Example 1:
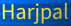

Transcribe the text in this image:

Harjpal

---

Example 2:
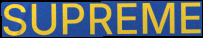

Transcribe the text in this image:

SUPREME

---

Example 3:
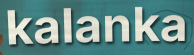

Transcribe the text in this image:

kalanka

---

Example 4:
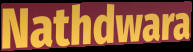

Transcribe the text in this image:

Nathdwara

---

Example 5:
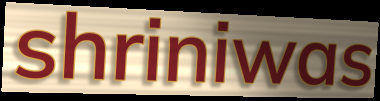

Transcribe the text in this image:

shriniwas